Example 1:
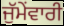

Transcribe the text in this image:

ਜੁੱਮੇਂਵਾਰੀ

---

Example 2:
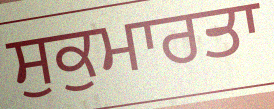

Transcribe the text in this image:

ਸੁਕੁਮਾਰਤਾ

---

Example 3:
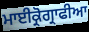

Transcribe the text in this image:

ਮਾਈਕ੍ਰੋਗ੍ਰਾਫੀਆ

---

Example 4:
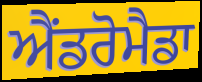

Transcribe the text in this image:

ਐਂਡਰੋਮੈਡਾ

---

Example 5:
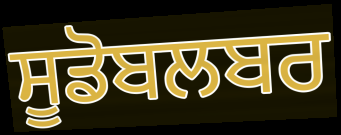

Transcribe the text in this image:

ਸੂਡੋਬਲਬਰ